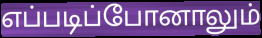
எப்படிப்போனாலும்